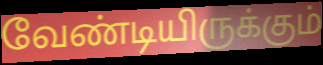
வேண்டியிருக்கும்